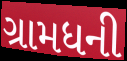
ગ્રામધની